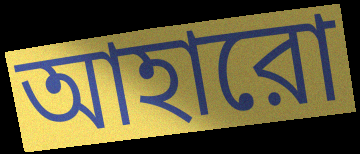
আহারো